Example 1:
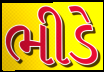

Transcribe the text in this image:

ભીડે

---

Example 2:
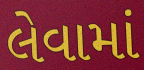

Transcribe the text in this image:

લેવામાં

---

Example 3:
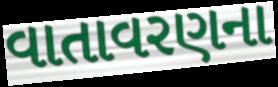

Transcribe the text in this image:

વાતાવરણના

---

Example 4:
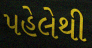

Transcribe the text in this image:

પહેલેથી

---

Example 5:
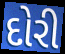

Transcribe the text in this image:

દોરી